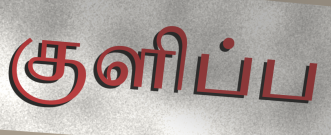
குளிப்ப